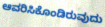
ಆವರಿಸಿಕೊಂಡಿರುವುದು